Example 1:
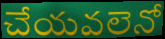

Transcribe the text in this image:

చేయవలెనో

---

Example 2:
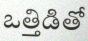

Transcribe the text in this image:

ఒత్తిడితో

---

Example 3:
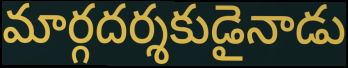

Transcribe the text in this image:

మార్గదర్శకుడైనాడు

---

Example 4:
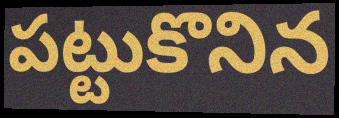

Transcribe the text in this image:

పట్టుకొనిన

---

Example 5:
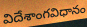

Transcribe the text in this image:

విదేశాంగవిధానం